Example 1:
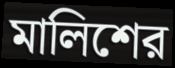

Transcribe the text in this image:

মালিশের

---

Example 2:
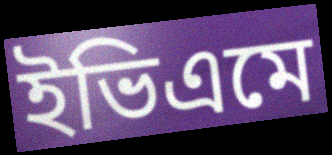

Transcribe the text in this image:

ইভিএমে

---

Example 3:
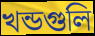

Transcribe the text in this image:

খন্ডগুলি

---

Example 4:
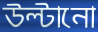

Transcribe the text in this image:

উল্টানো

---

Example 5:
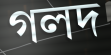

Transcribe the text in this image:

গলদ